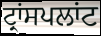
ਟ੍ਰਾਂਸਪਲਾਂਟ